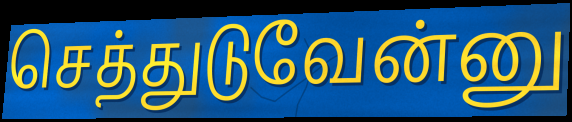
செத்துடுவேன்னு